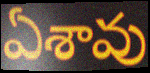
ఏశావు